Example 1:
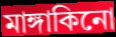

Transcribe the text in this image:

মাঙ্গাকিনো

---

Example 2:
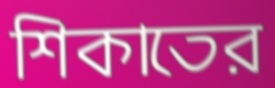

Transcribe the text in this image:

শিকাতের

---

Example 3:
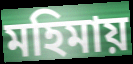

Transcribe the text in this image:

মহিমায়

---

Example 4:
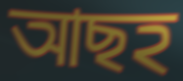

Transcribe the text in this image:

আছহ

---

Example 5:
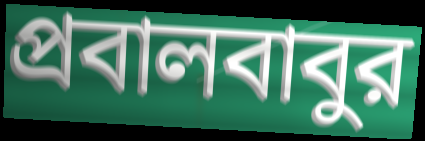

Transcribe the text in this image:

প্রবালবাবুর